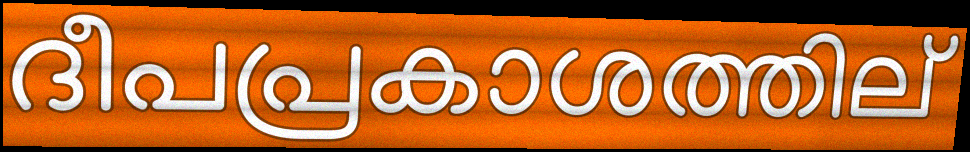
ദീപപ്രകാശത്തില്